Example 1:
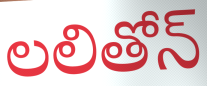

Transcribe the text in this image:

లలితోన్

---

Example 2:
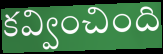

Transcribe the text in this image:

కవ్వించింది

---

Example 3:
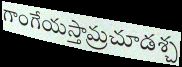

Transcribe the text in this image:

గాంగేయస్తామ్రచూడశ్చ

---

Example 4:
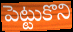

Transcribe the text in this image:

పెట్టుకొని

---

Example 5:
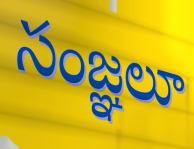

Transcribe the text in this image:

సంజ్ఞలూ